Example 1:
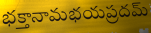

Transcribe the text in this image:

భక్తానామభయప్రదమ్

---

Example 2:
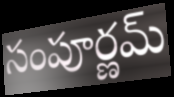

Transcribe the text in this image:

సంపూర్ణమ్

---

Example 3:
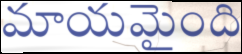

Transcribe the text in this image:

మాయమైంది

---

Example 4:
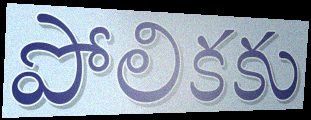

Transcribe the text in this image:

పోలికకు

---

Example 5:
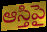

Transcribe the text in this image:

ఆస్తిపై